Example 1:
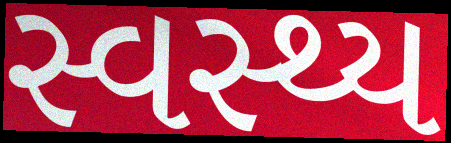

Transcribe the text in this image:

સ્વસ્થ્ય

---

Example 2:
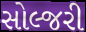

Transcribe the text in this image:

સોલ્જરી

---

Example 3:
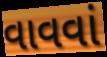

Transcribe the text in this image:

વાવવાં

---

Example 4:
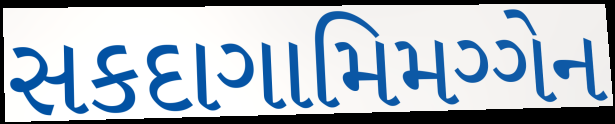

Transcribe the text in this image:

સકદાગામિમગ્ગેન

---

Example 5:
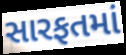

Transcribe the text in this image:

સારફતમાં